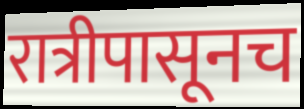
रात्रीपासूनच